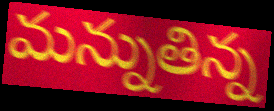
మన్నుతిన్న